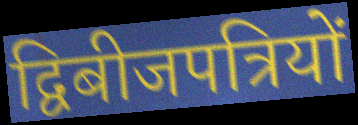
द्विबीजपत्रियों